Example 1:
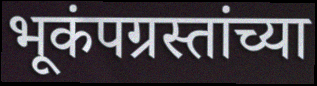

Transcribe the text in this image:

भूकंपग्रस्तांच्या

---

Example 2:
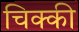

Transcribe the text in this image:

चिक्की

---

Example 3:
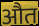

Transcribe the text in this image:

औत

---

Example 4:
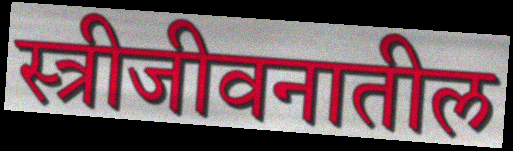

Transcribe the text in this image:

स्त्रीजीवनातील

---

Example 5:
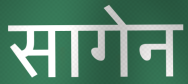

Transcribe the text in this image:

सागेन